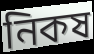
নিকষ